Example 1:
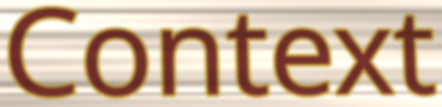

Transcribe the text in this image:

Context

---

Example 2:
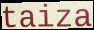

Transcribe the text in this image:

taiza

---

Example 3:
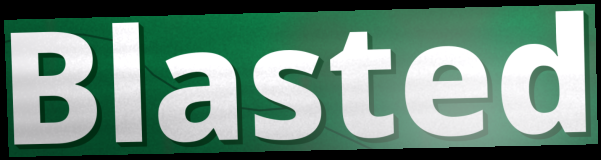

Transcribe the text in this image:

Blasted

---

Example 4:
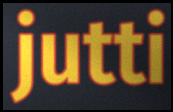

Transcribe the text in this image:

jutti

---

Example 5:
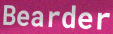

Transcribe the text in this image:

Bearder